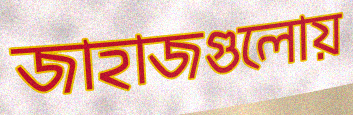
জাহাজগুলোয়